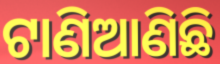
ଟାଣିଆଣିଛି